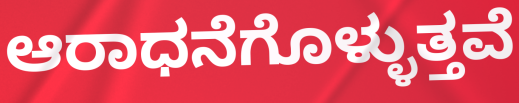
ಆರಾಧನೆಗೊಳ್ಳುತ್ತವೆ